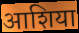
आशिया